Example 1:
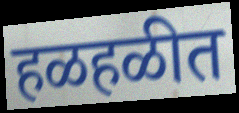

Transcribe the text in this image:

हळहळीत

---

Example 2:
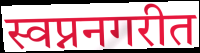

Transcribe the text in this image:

स्वप्ननगरीत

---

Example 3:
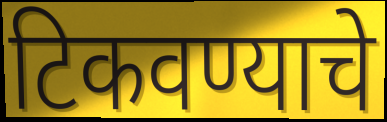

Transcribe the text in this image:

टिकवण्याचे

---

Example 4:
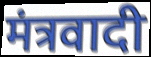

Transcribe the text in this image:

मंत्रवादी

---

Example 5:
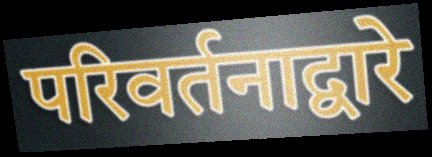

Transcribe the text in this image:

परिवर्तनाद्वारे